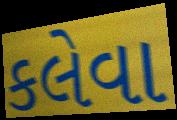
કલેવા